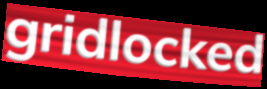
gridlocked